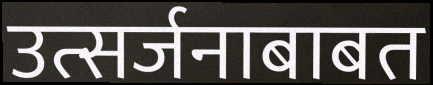
उत्सर्जनाबाबत